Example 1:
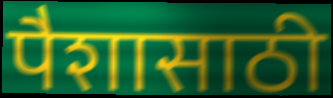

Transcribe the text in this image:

पैशासाठी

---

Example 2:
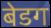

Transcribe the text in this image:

बेडग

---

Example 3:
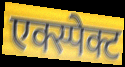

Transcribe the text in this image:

एक्स्पेक्ट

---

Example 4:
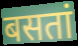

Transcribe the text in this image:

बसतां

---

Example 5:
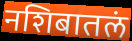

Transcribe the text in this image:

नशिबातलं